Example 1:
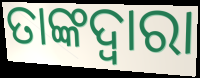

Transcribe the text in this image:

ତାଙ୍କଦ୍ୱାରା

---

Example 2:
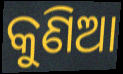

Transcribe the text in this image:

କୁଣିଆ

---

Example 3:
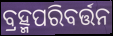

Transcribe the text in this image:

ବ୍ରହ୍ମପରିବର୍ତ୍ତନ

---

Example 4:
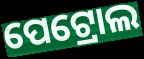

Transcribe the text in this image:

ପେଟ୍ରୋଲ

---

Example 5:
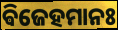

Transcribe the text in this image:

ଵିଜେହମାନଃ